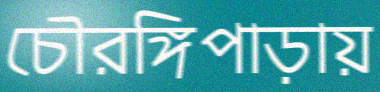
চৌরঙ্গিপাড়ায়